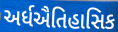
અર્ધઐતિહાસિક